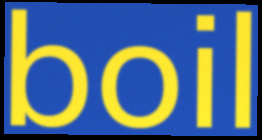
boil